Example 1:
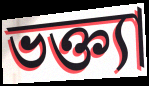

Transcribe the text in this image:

ভক্ত্যা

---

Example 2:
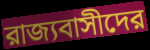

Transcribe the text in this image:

রাজ্যবাসীদের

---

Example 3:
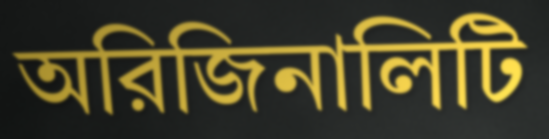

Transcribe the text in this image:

অরিজিনালিটি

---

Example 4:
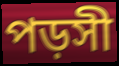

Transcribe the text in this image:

পড়সী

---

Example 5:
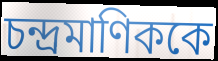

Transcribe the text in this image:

চন্দ্রমাণিককে